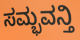
ಸಮ್ಭವನ್ತಿ